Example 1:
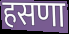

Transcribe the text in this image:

हसणा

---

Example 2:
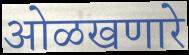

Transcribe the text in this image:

ओळखणारे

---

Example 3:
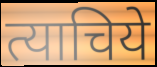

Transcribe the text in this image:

त्याचिये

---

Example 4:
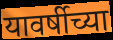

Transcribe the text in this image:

यावर्षीच्या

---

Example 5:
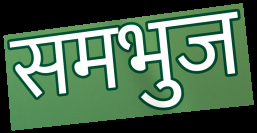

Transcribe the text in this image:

समभुज